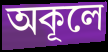
অকূলে